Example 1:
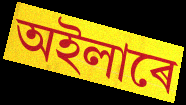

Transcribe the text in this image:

অইলাৰে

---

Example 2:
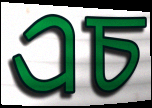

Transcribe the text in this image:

এচ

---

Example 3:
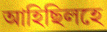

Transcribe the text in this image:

আহিছিলহে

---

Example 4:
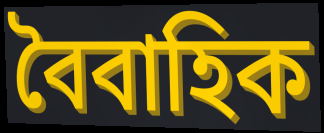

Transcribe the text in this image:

বৈবাহিক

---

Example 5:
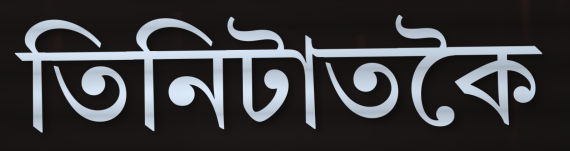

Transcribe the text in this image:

তিনিটাতকৈ